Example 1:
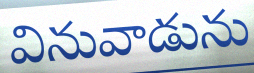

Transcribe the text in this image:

వినువాడును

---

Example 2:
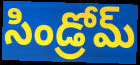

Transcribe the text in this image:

సిండ్రోమ్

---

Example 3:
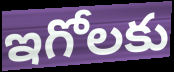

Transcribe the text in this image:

ఇగోలకు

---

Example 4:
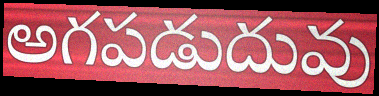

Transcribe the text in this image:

అగపడుదువు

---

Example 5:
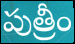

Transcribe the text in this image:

పుత్రీం